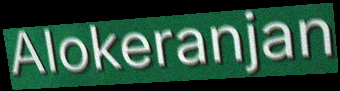
Alokeranjan